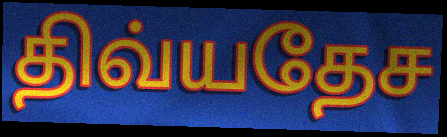
திவ்யதேச